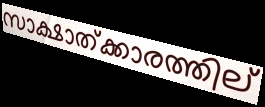
സാക്ഷാത്ക്കാരത്തില്